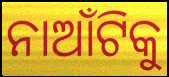
ନାଆଁଟିକୁ